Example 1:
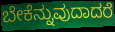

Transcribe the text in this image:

ಬೇಕೆನ್ನುವುದಾದರೆ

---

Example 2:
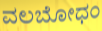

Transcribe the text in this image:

ವಲಬೋಧಂ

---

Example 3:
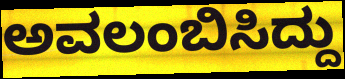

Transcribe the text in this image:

ಅವಲಂಬಿಸಿದ್ದು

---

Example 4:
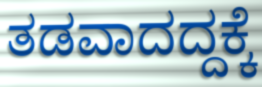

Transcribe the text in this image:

ತಡವಾದದ್ದಕ್ಕೆ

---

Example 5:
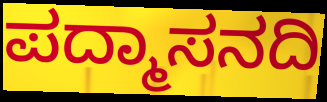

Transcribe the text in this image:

ಪದ್ಮಾಸನದಿ